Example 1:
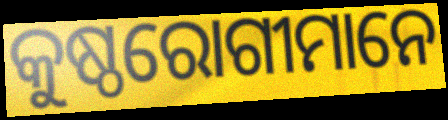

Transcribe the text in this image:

କୁଷ୍ଠରୋଗୀମାନେ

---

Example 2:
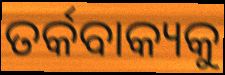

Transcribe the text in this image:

ତର୍କବାକ୍ୟକୁ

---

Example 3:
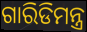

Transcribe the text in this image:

ଗାରିଡିମନ୍ତ୍ର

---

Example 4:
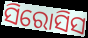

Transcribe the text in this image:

ସିରୋସିସ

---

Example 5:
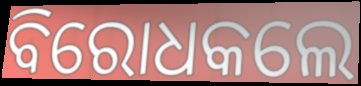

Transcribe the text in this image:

ବିରୋଧକଲେ